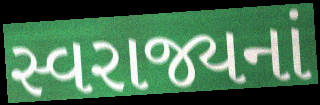
સ્વરાજ્યનાં